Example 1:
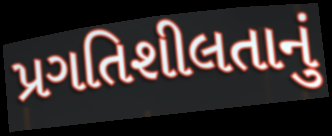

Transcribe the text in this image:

પ્રગતિશીલતાનું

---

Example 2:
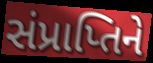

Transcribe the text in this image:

સંપ્રાપ્તિને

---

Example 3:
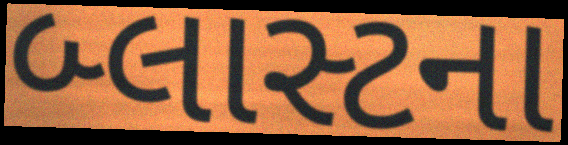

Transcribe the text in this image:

બ્લાસ્ટના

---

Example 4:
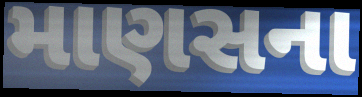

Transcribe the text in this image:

માણસના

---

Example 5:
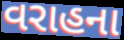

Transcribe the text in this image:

વરાહના